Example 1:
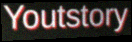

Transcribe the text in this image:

Youtstory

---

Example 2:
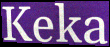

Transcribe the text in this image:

Keka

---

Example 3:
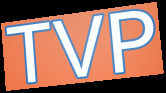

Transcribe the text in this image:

TVP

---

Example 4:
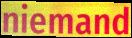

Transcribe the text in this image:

niemand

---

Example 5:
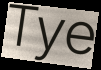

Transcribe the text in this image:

Tye